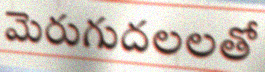
మెరుగుదలలతో